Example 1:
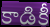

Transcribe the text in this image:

కాడికీ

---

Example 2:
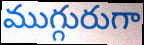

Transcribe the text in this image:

ముగ్గురుగా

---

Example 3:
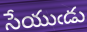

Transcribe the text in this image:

సేయుఁడు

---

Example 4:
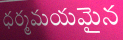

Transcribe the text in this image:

ధర్మమయమైన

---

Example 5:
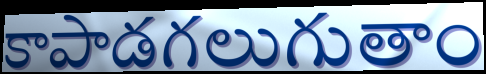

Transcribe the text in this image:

కాపాడగలుగుతాం